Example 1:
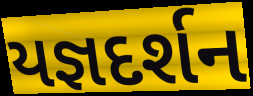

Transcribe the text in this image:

યજ્ઞદર્શન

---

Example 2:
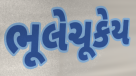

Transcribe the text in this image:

ભૂલેચૂકેય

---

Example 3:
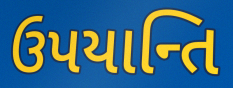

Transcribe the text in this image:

ઉપયાન્તિ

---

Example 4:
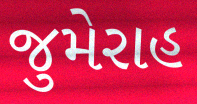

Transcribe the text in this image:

જુમેરાહ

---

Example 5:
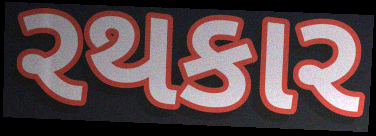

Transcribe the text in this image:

રથકાર